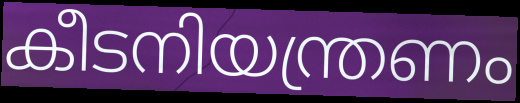
കീടനിയന്ത്രണം